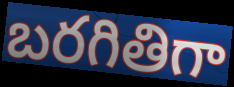
బరగితిగా